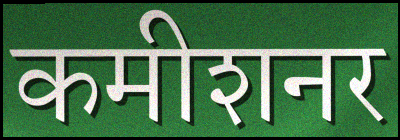
कमीशनर